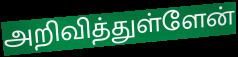
அறிவித்துள்ளேன்